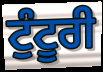
ਟੁੰਟੂਰੀ